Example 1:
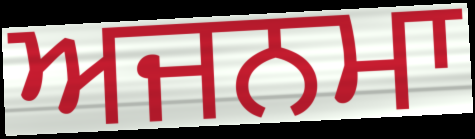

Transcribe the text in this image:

ਅਜਨਮਾ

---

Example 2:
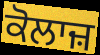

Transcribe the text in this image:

ਕੋਲਾਜ਼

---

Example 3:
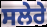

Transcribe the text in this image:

ਸਲੇਰੇ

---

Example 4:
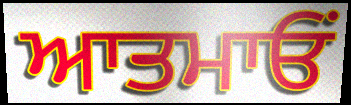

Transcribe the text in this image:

ਆਤਮਾਓਂ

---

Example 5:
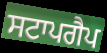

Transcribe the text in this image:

ਸਟਾਪਗੈਪ